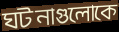
ঘটনাগুলোকে